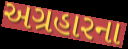
અગ્રહારના